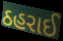
ઠહરાઈ